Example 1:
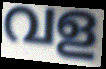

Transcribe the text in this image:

വള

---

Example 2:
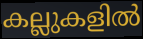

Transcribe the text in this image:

കല്ലുകളിൽ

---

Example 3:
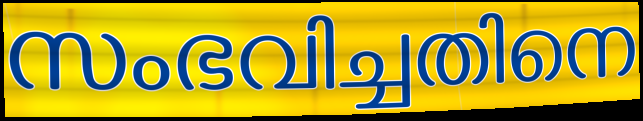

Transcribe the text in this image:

സംഭവിച്ചതിനെ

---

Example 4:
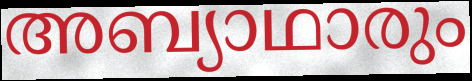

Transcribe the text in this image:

അബ്യാഥാരും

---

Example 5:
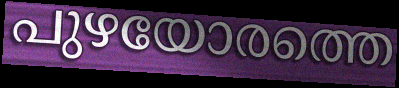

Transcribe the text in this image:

പുഴയോരത്തെ